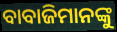
ବାବାଜିମାନଙ୍କୁ